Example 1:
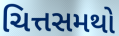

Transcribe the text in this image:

ચિત્તસમથો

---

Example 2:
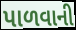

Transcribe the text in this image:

પાળવાની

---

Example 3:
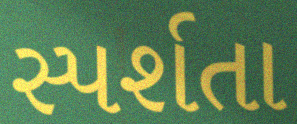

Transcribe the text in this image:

સ્પર્શતા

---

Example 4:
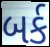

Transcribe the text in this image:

બર્ક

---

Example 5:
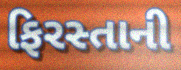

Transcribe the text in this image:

ફિરસ્તાની